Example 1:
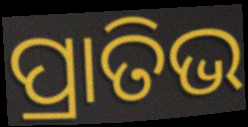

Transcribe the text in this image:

ପ୍ରାତିଭ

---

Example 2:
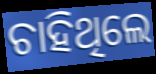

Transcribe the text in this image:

ଚାହିଥିଲେ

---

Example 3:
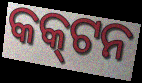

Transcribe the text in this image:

କକ୍‌ଟନ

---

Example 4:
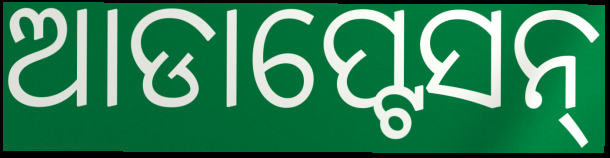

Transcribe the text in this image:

ଆଡାପ୍ଟେସନ୍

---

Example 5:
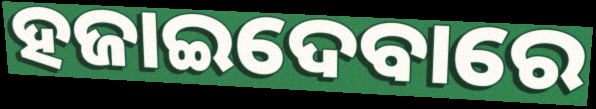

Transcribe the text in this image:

ହଜାଇଦେବାରେ